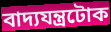
বাদ্যযন্ত্ৰটোক